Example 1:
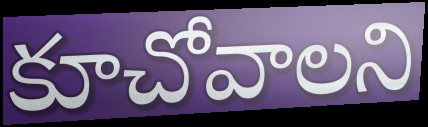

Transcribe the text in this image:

కూచోవాలని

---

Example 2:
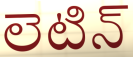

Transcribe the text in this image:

లెటిన్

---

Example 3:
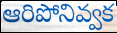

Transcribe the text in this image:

ఆరిపోనివ్వక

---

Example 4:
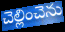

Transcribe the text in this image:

చెల్లించెను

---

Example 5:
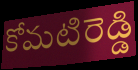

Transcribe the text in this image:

కోమటిరెడ్డి